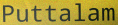
Puttalam